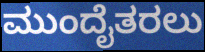
ಮುಂದೈತರಲು